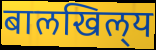
बालखिल्य